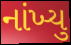
નાંખ્યુ